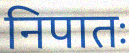
निपातः